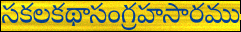
సకలకథాసంగ్రహసారము